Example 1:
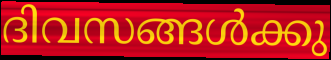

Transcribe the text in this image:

ദിവസങ്ങൾക്കു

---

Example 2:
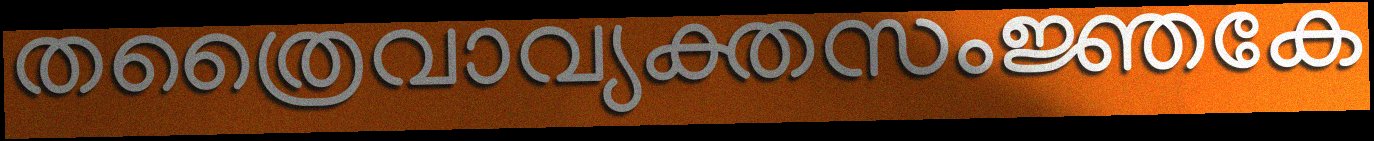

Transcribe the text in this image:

തത്രൈവാവ്യക്തസംജ്ഞകേ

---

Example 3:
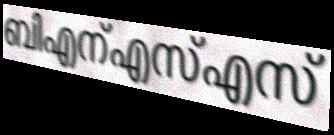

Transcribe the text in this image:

ബിഎന്എസ്എസ്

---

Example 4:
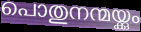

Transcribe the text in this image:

പൊതുനന്മയ്ക്കും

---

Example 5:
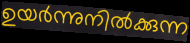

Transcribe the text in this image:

ഉയർന്നുനിൽക്കുന്ന